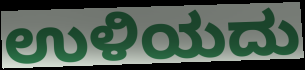
ಉಳಿಯದು